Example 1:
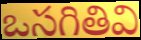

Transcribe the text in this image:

ఒసగితివి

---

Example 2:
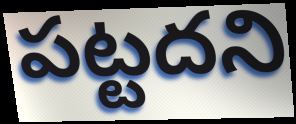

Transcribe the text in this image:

పట్టదని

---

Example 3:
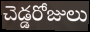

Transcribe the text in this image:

చెడ్డరోజులు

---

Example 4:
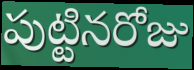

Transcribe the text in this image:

పుట్టినరోజు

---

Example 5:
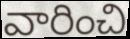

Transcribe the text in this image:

వారించి